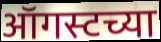
ऑगस्टच्या